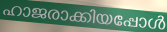
ഹാജരാക്കിയപ്പോൾ